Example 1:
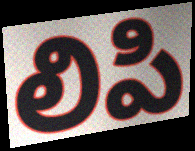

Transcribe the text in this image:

లిపి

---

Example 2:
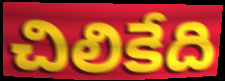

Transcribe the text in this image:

చిలికేది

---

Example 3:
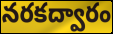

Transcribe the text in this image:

నరకద్వారం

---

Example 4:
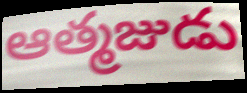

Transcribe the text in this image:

ఆత్మజుడు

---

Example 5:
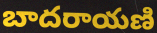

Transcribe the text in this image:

బాదరాయణి